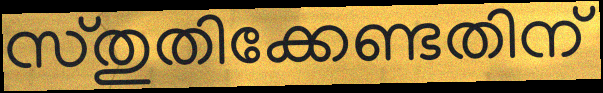
സ്തുതിക്കേണ്ടതിന്